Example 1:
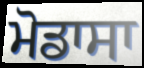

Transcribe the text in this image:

ਮੋਡਾਸਾ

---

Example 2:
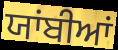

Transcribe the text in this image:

ਯਾਂਬੀਆਂ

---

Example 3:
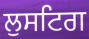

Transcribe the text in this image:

ਲੁਸਟਿਗ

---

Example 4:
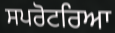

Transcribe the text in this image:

ਸਪਰੋਟਰਿਆ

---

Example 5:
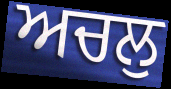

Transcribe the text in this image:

ਅਚਲੁ